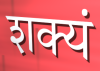
शक्यं